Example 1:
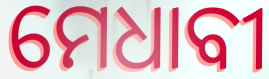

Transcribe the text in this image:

ମେଧାବୀ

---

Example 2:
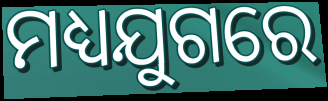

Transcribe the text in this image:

ମଧ୍ୟଯୁଗରେ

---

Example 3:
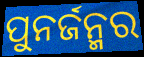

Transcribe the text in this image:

ପୁନର୍ଜନ୍ମର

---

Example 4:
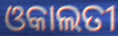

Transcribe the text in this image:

ଓକାଲତୀ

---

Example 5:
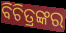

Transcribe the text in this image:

ବିଚିତ୍ରଙ୍କର